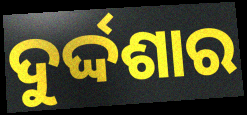
ଦୁର୍ଦ୍ଦଶାର